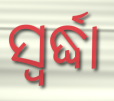
ସ୍ଵର୍ଦ୍ଧା